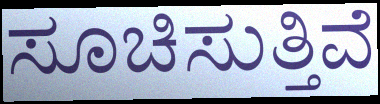
ಸೂಚಿಸುತ್ತಿವೆ